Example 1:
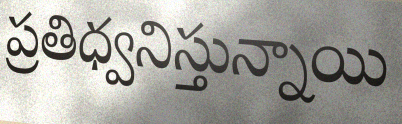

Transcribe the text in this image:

ప్రతిధ్వనిస్తున్నాయి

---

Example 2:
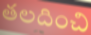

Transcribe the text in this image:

తలదించి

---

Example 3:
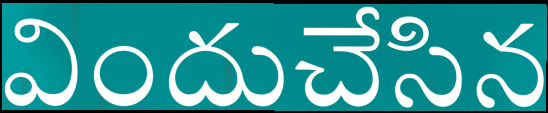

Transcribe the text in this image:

విందుచేసిన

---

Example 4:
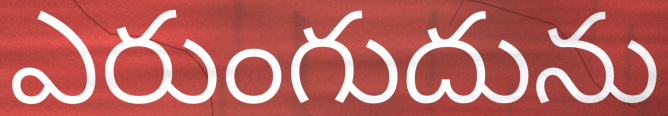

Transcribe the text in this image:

ఎరుంగుదును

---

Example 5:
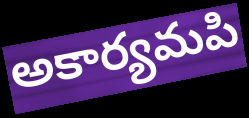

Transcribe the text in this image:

అకార్యమపి